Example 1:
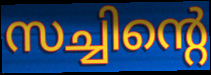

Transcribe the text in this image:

സച്ചിന്റെ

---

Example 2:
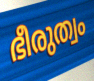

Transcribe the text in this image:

ഭീരുത്വം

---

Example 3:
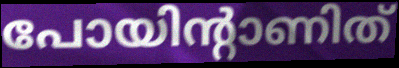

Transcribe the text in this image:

പോയിന്റാണിത്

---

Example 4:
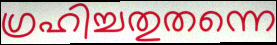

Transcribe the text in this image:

ഗ്രഹിച്ചതുതന്നെ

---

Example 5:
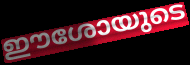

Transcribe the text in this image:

ഈശോയുടെ